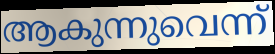
ആകുന്നുവെന്ന്